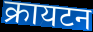
क्रायटन